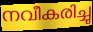
നവീകരിച്ചു